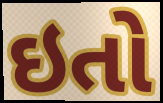
ઇતો